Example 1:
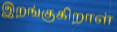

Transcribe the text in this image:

இறங்குகிறாள்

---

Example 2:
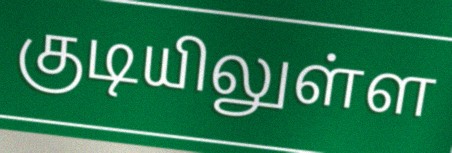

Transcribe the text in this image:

குடியிலுள்ள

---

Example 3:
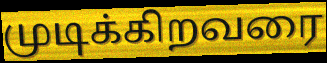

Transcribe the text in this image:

முடிக்கிறவரை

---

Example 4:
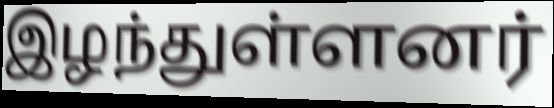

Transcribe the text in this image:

இழந்துள்ளனர்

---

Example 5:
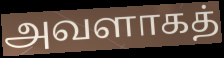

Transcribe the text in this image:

அவளாகத்